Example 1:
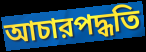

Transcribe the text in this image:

আচারপদ্ধতি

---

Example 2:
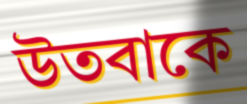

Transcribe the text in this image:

উতবাকে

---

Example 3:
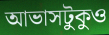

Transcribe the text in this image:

আভাসটুকুও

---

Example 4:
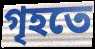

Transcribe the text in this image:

গৃহতে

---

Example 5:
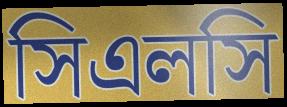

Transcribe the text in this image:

সিএলসি